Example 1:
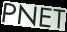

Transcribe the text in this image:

PNET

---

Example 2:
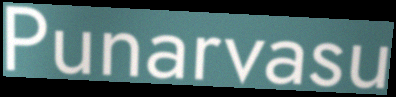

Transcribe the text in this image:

Punarvasu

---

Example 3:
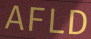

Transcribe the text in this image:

AFLD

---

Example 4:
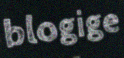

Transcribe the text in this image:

blogige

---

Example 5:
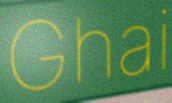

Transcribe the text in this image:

Ghai